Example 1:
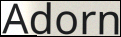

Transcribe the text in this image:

Adorn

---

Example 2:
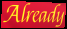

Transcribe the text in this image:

Already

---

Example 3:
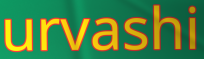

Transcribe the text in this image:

urvashi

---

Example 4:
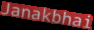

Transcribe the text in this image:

Janakbhai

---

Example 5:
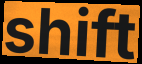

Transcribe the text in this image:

shift